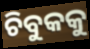
ଚିବୁକକୁ